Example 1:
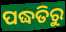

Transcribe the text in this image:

ପଦ୍ଧତିରୁ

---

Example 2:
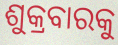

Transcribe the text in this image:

ଶୁକ୍ରବାରକୁ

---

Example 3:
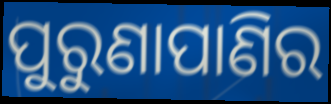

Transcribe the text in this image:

ପୁରୁଣାପାଣିର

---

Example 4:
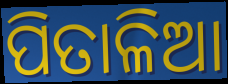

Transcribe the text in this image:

ପିତାଳିଆ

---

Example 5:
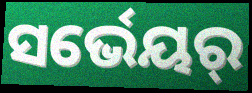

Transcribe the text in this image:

ସର୍ଭେୟର୍